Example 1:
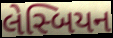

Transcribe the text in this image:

લેસ્બિયન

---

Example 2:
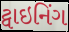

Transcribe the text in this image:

ટ્વાઇનિંગ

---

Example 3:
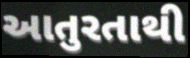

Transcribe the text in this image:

આતુરતાથી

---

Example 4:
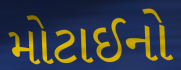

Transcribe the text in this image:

મોટાઈનો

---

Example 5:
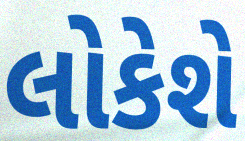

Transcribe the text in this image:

લોકેશે